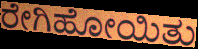
ರೇಗಿಹೋಯಿತು